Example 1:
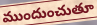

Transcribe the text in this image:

ముందుంచుతూ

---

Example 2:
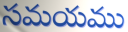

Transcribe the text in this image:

సమయము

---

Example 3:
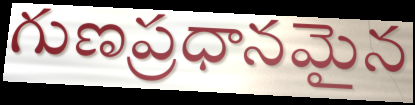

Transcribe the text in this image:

గుణప్రధానమైన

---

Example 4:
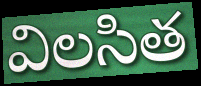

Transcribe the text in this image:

విలసిత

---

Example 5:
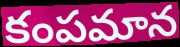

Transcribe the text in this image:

కంపమాన